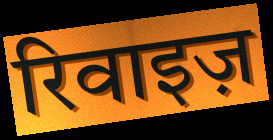
रिवाइज़